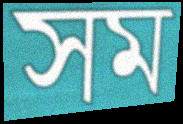
সম